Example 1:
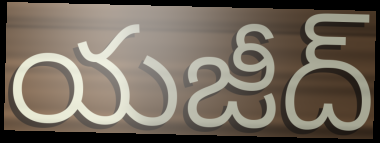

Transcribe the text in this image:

యజీద్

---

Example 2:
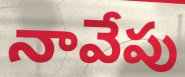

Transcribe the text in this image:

నావేపు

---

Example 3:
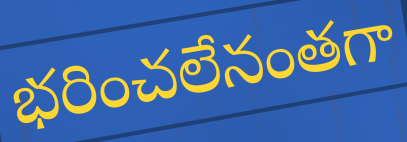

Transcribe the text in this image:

భరించలేనంతగా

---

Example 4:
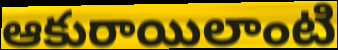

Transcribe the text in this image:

ఆకురాయిలాంటి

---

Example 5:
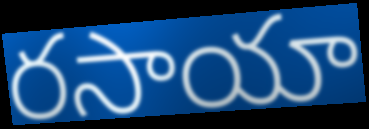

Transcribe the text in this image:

రసాయా